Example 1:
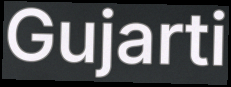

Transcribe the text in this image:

Gujarti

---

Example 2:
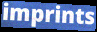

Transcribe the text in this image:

imprints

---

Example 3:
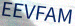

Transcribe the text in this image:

EEVFAM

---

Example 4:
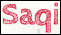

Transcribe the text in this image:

Saqi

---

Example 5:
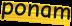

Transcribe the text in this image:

ponam